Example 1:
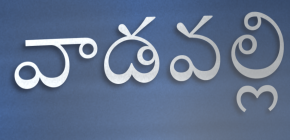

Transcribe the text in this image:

వాడవల్లి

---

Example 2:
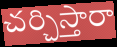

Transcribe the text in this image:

చర్చిస్తారా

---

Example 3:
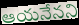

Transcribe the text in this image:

ఆయనేనని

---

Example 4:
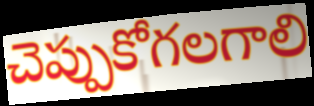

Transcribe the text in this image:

చెప్పుకోగలగాలి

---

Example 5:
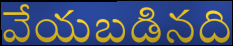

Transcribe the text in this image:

వేయబడినది